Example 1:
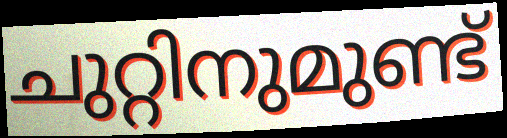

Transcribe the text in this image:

ചുറ്റിനുമുണ്ട്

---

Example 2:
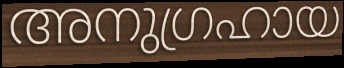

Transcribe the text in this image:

അനുഗ്രഹായ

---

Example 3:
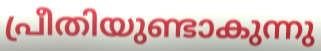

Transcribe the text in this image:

പ്രീതിയുണ്ടാകുന്നു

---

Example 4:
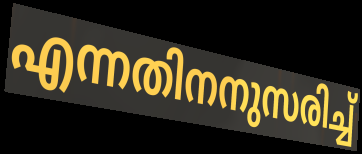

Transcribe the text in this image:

എന്നതിനനുസരിച്ച്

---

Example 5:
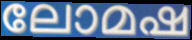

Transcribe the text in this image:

ലോമഷ